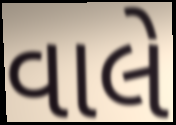
વાલે